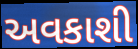
અવકાશી